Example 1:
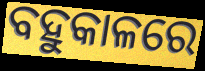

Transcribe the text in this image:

ବହୁକାଳରେ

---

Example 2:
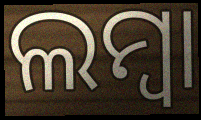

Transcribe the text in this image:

ଲମ୍ୱା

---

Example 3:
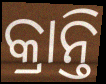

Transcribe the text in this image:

କ୍ରାନ୍ତି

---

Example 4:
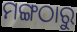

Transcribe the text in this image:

ମଙ୍ଗଠାରୁ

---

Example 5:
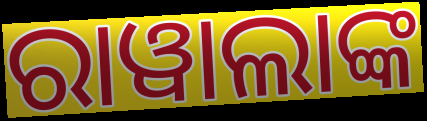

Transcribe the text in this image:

ରାୱାଲାଙ୍କ